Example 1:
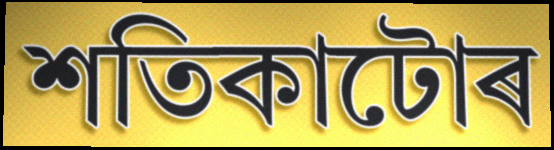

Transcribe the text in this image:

শতিকাটোৰ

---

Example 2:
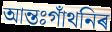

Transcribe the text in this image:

আন্তঃগাঁথনিৰ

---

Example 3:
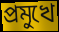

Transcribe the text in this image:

প্ৰমুখে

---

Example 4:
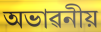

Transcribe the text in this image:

অভাৱনীয়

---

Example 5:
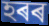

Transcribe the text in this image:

হৰৰ